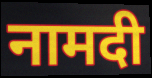
नामदी